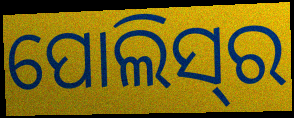
ପୋଲିସ୍‍ର